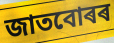
জাতবোৰৰ